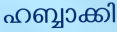
ഹബ്ബാക്കി